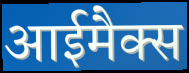
आईमैक्स